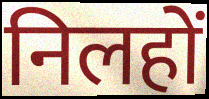
निलहों